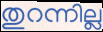
തുറന്നില്ല